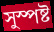
সুস্পষ্ট